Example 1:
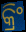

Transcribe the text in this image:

କ୍ରିଂ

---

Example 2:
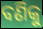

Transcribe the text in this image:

ବଣିକୁ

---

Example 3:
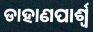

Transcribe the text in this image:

ଡାହାଣପାର୍ଶ୍ୱ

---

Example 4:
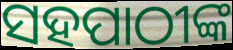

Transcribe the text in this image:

ସହପାଠୀଙ୍କ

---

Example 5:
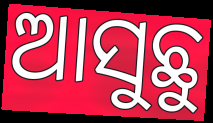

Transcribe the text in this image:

ଆସୁଛୁ